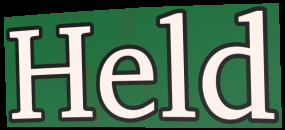
Held